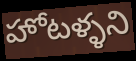
హోటళ్ళని